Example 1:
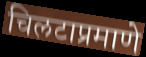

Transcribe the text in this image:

चिलटाप्रमाणे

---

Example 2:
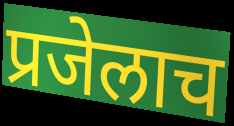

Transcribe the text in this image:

प्रजेलाच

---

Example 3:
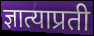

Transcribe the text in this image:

ज्ञात्याप्रती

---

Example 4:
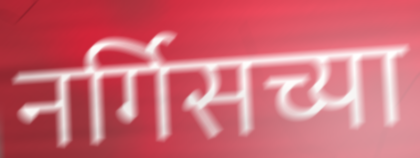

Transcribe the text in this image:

नर्गिसच्या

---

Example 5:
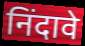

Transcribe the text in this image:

निंदावे